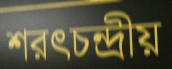
শরৎচন্দ্রীয়